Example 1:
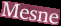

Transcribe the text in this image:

Mesne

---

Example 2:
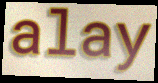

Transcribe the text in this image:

alay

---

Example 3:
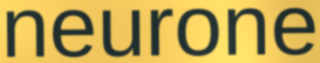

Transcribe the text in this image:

neurone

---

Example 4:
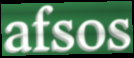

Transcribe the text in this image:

afsos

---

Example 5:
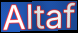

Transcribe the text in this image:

Altaf